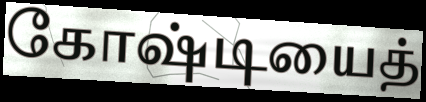
கோஷ்டியைத்